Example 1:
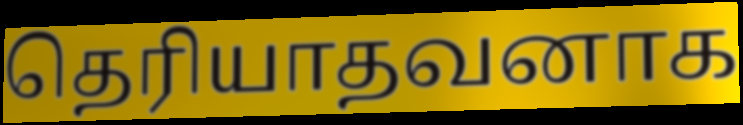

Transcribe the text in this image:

தெரியாதவனாக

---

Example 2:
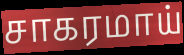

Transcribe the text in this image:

சாகரமாய்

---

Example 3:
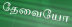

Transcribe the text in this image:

தேவையோ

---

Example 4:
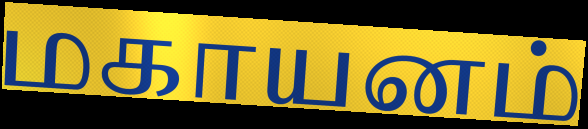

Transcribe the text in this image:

மகாயனம்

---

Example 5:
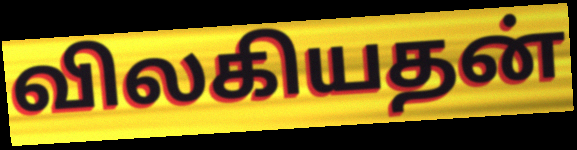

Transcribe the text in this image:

விலகியதன்